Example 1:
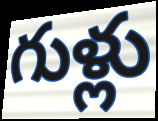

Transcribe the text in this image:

గుళ్లు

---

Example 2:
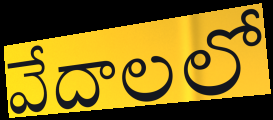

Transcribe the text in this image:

వేదాలలో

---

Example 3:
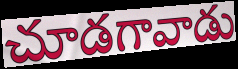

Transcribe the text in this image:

చూడగావాడు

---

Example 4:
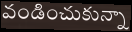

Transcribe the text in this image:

వండించుకున్నా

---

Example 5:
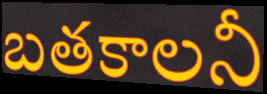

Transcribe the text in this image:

బతకాలనీ